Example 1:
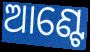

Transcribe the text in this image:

ଆଣ୍ଟେ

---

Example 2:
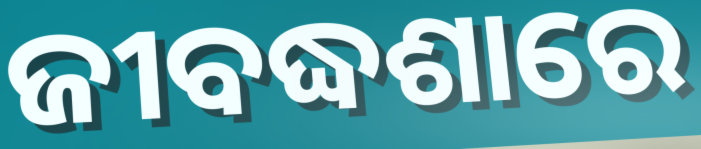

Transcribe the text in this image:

ଜୀବଦ୍ଧଶାରେ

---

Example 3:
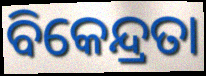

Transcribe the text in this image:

ବିକେନ୍ଦ୍ରତା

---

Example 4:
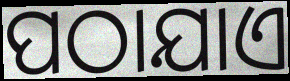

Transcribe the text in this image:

ପଠାଯାଏ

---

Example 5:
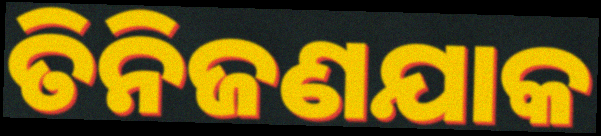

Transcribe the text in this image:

ତିନିଜଣଯାକ